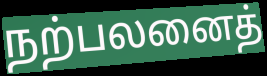
நற்பலனைத்